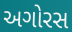
અગોરસ